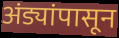
अंड्यांपासून